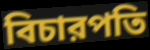
বিচারপতি